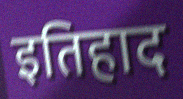
इतिहाद